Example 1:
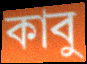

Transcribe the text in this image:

কাবু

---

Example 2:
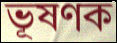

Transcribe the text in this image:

ভূষণক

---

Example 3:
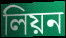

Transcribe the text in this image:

লিয়ন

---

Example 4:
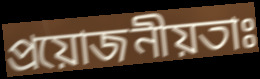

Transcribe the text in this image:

প্ৰয়োজনীয়তাঃ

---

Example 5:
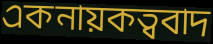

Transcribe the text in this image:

একনায়কত্ববাদ